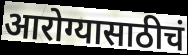
आरोग्यासाठीचं